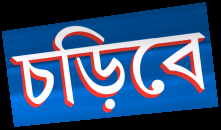
চড়িবে